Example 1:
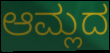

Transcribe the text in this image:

ಆಮ್ಲದ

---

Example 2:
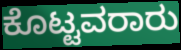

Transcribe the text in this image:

ಕೊಟ್ಟವರಾರು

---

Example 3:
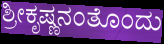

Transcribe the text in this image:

ಶ್ರೀಕೃಷ್ಣನಂತೊಂದು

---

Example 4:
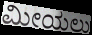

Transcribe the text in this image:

ಮೀಯಲು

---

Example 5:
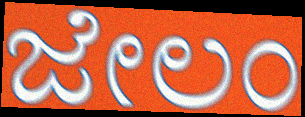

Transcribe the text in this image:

ಜೇಲಂ